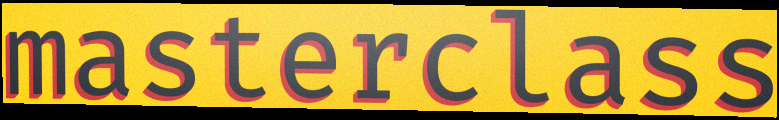
masterclass